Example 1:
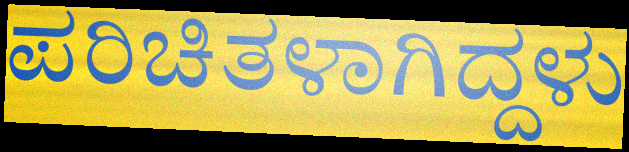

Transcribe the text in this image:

ಪರಿಚಿತಳಾಗಿದ್ದಳು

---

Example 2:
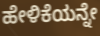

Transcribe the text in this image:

ಹೇಳಿಕೆಯನ್ನೇ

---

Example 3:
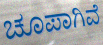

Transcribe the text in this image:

ಚೂಪಾಗಿವೆ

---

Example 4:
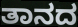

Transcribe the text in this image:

ತಾನದ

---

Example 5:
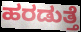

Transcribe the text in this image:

ಹರಡುತ್ತೆ